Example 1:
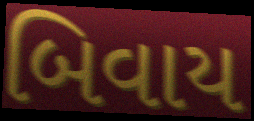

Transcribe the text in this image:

બિવાય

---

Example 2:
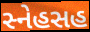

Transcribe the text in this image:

સ્નેહસહ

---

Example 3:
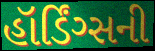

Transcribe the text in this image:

હૉર્ડિંગ્સની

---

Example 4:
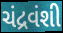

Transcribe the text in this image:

ચંદ્રવંશી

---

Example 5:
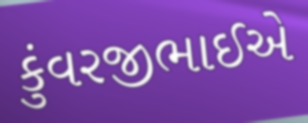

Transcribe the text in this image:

કુંવરજીભાઈએ